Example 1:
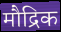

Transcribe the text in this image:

मौद्रिक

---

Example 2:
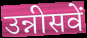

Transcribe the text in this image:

उन्नीसवें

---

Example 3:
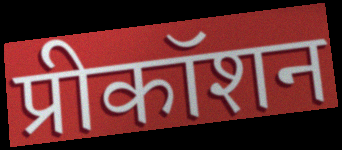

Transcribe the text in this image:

प्रीकॉशन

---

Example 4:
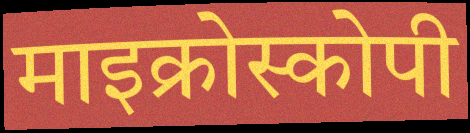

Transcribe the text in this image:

माइक्रोस्कोपी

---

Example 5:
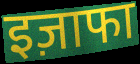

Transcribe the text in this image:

इज़ाफा